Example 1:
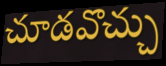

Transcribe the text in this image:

చూడవొచ్చు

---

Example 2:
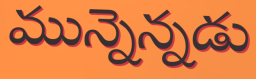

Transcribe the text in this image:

మున్నెన్నడు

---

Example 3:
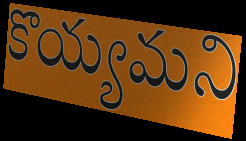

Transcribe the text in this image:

కొయ్యమని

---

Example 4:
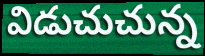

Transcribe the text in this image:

విడుచుచున్న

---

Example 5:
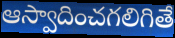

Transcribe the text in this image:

ఆస్వాదించగలిగితే